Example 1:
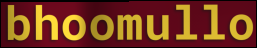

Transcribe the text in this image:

bhoomullo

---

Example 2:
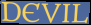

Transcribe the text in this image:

DEVIL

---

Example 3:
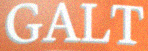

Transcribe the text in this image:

GALT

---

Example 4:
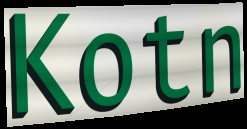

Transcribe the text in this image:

Kotn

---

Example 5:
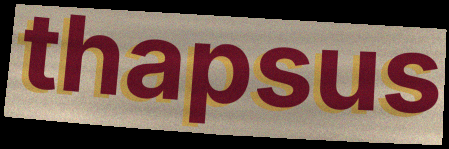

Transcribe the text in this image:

thapsus